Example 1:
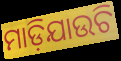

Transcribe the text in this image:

ମାଡ଼ିଯାଉଚି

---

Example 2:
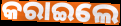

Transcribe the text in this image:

କରାଇଲେ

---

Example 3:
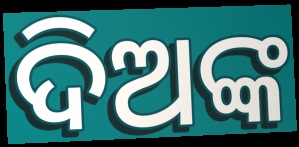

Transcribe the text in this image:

ଦିଅଙ୍କ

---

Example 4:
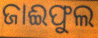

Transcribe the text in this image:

ଜାଈଫୁଲ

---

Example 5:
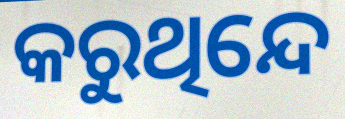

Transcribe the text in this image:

କରୁଥିନ୍ଦେ